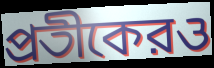
প্রতীকেরও